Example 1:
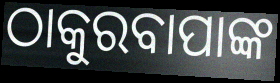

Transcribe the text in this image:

ଠାକୁରବାପାଙ୍କ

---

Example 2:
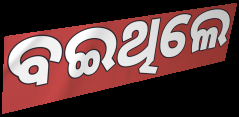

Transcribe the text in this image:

ବଇଥିଲେ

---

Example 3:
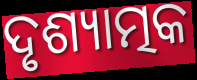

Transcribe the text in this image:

ଦୃଶ୍ୟାତ୍ମକ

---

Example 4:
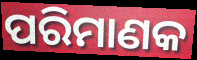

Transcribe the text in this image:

ପରିମାଣକ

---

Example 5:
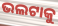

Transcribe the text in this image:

ଭଲଟାକୁ